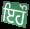
ਇਹੌ